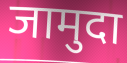
जामुदा